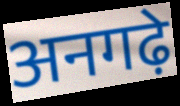
अनगढ़े